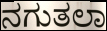
ನಗುತಲಾ